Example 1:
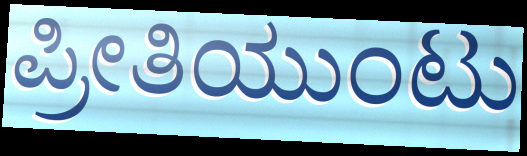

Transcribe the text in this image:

ಪ್ರೀತಿಯುಂಟು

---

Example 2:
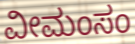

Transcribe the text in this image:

ವೀಮಂಸಂ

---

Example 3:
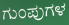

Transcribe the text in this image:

ಗುಂಪುಗಳ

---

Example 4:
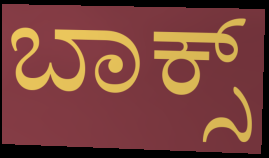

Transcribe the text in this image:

ಬಾಕ್ಸ್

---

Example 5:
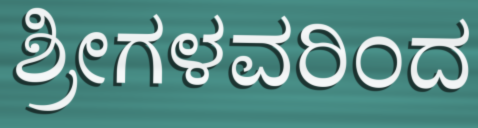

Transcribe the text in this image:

ಶ್ರೀಗಳವರಿಂದ